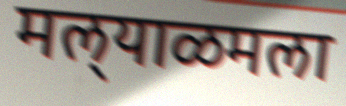
मल्याळमला